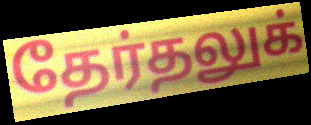
தேர்தலுக்